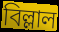
বিল্লাল